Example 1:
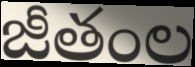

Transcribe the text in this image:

జీతంల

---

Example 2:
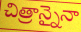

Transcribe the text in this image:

చిత్రాన్నైనా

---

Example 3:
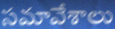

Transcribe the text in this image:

సమావేశాలు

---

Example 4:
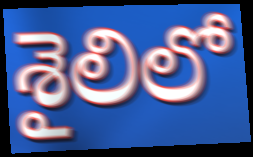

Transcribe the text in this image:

శైలిలో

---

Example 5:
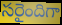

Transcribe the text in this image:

సరైందిగా